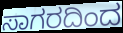
ಸಾಗರದಿಂದ